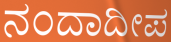
ನಂದಾದೀಪ